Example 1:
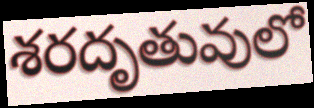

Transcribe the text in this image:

శరదృతువులో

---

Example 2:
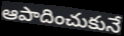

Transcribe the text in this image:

ఆపాదించుకునే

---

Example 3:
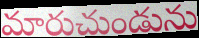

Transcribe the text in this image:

మారుచుండును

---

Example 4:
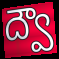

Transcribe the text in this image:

ద్వౌ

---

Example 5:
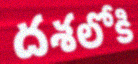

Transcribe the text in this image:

దశలోకి